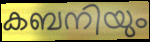
കബനിയും